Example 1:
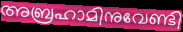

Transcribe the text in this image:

അബ്രഹാമിനുവേണ്ടി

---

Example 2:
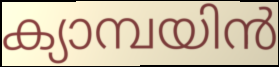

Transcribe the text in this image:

ക്യാമ്പയിൻ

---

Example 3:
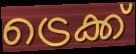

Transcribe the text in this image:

ട്രെക്ക്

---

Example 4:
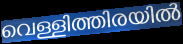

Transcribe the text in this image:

വെള്ളിത്തിരയിൽ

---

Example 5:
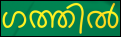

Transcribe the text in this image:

ഗത്തിൽ